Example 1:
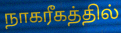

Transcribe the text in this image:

நாகரீகத்தில்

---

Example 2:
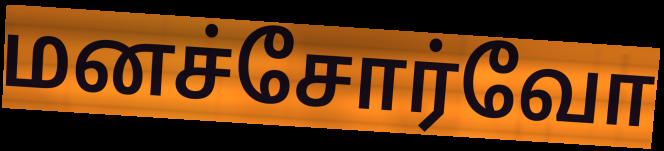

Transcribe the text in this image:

மனச்சோர்வோ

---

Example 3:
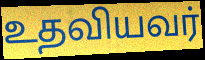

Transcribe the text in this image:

உதவியவர்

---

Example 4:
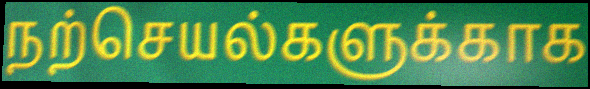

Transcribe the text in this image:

நற்செயல்களுக்காக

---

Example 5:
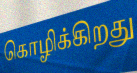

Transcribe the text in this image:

கொழிக்கிறது